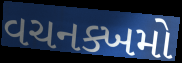
વચનક્ખમો